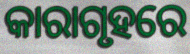
କାରାଗୃହରେ